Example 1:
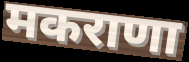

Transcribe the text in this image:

मकराणा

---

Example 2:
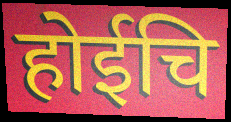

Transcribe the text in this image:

होईचि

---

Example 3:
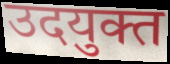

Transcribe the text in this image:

उदयुक्त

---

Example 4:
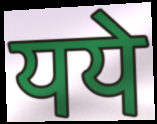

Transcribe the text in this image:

यये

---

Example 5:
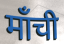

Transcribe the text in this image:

माँची